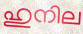
ഹുനില